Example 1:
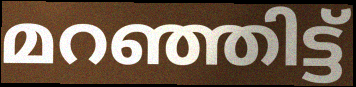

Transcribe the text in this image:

മറഞ്ഞിട്ട്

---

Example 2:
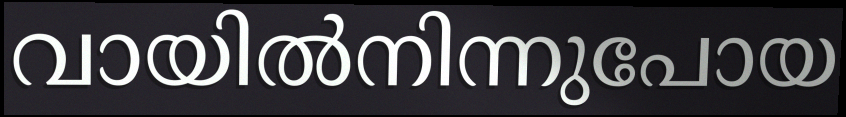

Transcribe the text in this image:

വായിൽനിന്നുപോയ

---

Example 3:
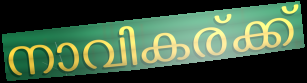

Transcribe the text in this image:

നാവികര്ക്ക്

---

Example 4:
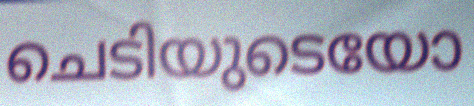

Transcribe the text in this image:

ചെടിയുടെയോ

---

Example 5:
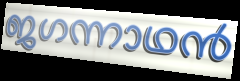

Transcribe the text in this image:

ജഗന്നാഥൻ